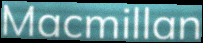
Macmillan